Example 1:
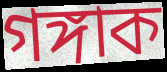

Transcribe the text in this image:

গঙ্গাক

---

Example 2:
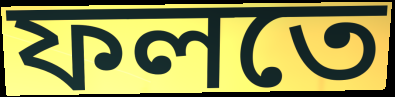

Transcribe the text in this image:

ফলতে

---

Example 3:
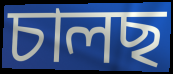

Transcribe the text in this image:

চালছ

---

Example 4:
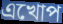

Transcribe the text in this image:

এখোপ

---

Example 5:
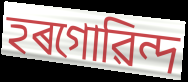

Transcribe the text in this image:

হৰগোৱিন্দ